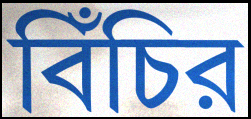
বিঁচির